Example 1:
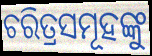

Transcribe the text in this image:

ଚରିତ୍ରସମୂହଙ୍କୁ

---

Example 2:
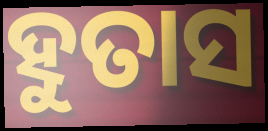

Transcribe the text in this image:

ହୁତାସ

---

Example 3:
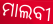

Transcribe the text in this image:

ମାଲବୀ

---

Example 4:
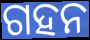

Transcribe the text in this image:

ଗହନ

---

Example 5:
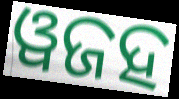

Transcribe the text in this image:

ୱଜହ